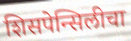
शिसपेन्सिलीचा